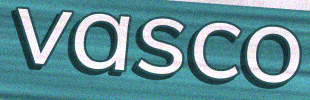
vasco